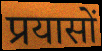
प्रयासों